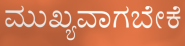
ಮುಖ್ಯವಾಗಬೇಕೆ